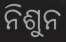
ନିଶୁନ